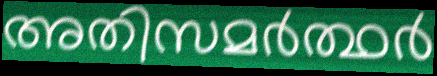
അതിസമർത്ഥർ